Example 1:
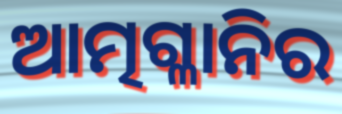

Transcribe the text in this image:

ଆତ୍ମଗ୍ଳାନିର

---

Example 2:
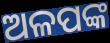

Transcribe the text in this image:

ଅଳପଙ୍କ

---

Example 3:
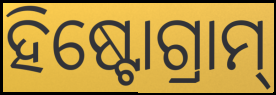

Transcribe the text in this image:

ହିଷ୍ଟୋଗ୍ରାମ୍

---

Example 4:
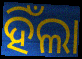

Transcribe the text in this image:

ହିଁଲା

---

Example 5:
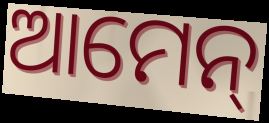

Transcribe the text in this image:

ଆମେନ୍